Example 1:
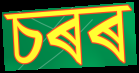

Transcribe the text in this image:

চৰৰ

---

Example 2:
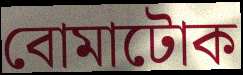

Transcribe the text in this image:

বোমাটোক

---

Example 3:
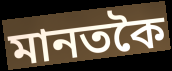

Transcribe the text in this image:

মানতকৈ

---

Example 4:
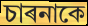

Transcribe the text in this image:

চাৰনাকে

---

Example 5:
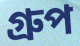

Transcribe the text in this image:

গ্ৰুপ